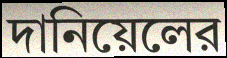
দানিয়েলের